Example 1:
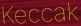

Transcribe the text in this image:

Keccak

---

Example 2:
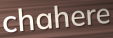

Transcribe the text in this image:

chahere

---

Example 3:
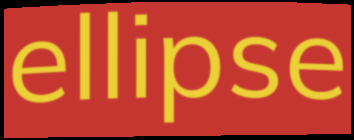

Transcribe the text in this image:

ellipse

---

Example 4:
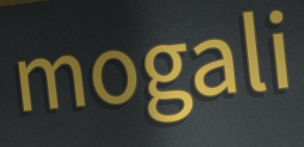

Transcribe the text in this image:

mogali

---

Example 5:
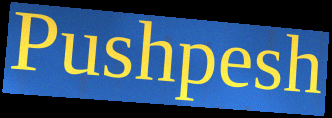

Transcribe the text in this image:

Pushpesh